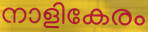
നാളികേരം